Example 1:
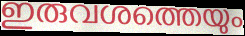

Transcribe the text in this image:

ഇരുവശത്തെയും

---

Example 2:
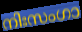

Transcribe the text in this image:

നിഃസംഗാ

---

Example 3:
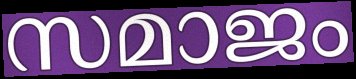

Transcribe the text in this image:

സമാജം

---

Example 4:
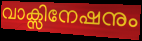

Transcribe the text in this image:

വാക്സിനേഷനും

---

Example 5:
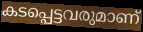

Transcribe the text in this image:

കടപ്പെട്ടവരുമാണ്